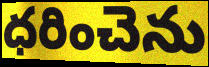
ధరించెను